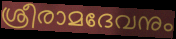
ശ്രീരാമദേവനും